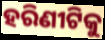
ହରିଣୀଟିକୁ